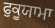
ਫੁਕੂਯਾਮਾ